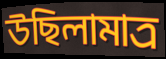
উছিলামাত্র